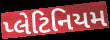
પ્લેટિનિયમ